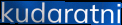
kudaratni